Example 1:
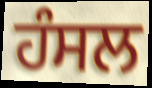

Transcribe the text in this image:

ਹੰਸਲ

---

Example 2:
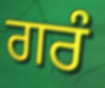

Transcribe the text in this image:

ਗਰੰ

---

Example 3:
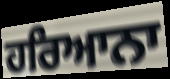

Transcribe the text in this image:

ਹਰਿਆਨਾ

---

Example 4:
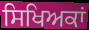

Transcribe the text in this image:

ਸਿਖਿਅਕਾਂ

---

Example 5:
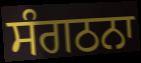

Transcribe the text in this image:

ਸੰਗਠਨਾ